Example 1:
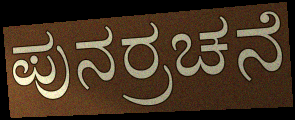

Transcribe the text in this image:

ಪುನರ್ರಚನೆ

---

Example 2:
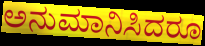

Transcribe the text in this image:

ಅನುಮಾನಿಸಿದರೂ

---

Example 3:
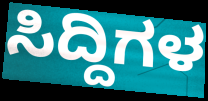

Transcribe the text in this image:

ಸಿದ್ದಿಗಳ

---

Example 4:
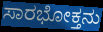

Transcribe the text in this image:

ಸಾರಭೋಕ್ತನು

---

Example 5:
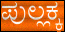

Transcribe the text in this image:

ಪುಲ್ಲಕ್ಕ